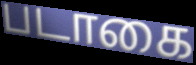
படாகை